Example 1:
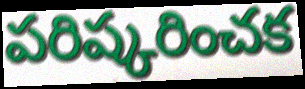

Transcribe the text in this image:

పరిష్కరించక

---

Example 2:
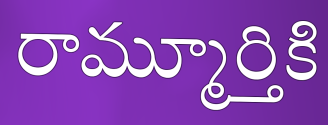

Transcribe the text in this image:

రామ్మూర్తికి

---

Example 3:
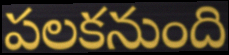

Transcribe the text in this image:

పలకనుంది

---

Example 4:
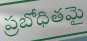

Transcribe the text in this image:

ప్రబోధితమై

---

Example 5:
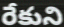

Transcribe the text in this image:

రేకుని